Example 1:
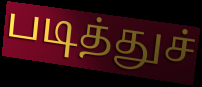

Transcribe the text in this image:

படித்துச்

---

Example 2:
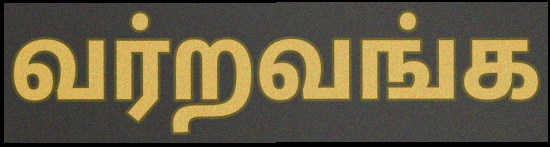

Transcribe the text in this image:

வர்றவங்க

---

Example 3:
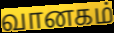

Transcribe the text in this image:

வானகம்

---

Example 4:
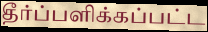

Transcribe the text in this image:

தீர்ப்பளிக்கப்பட்ட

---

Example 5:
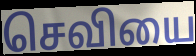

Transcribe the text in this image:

செவியை